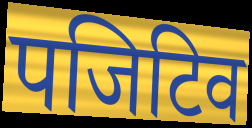
पजिटिव